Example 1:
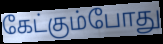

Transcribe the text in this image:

கேட்கும்போது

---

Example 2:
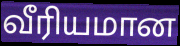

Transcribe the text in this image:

வீரியமான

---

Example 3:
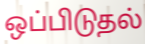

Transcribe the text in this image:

ஒப்பிடுதல்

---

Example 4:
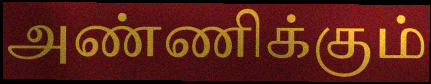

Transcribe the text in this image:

அண்ணிக்கும்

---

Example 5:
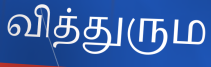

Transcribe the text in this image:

வித்துரும